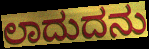
ಲಾದುದನು